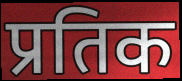
प्रतिक